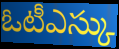
ఓటీఎస్కు